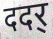
ददर्